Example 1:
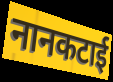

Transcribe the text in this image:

नानकटाई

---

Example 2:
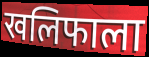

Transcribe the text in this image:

खलिफाला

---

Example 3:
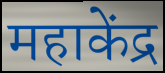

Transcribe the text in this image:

महाकेंद्र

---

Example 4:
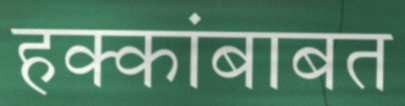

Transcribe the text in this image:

हक्कांबाबत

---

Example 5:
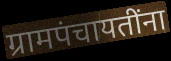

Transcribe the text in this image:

ग्रामपंचायतींना